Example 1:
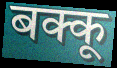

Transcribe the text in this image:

बक्कू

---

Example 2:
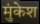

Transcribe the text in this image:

मुंकेश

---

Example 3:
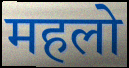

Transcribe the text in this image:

महलो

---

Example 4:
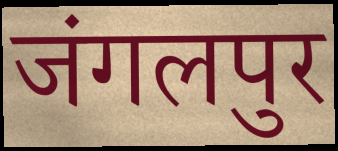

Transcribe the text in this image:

जंगलपुर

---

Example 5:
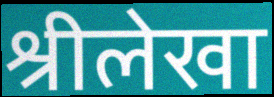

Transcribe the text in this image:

श्रीलेखा